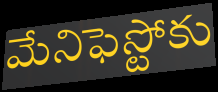
మేనిఫెస్టోకు